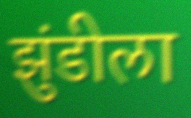
झुंडीला